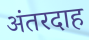
अंतरदाह